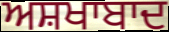
ਅਸ਼ਖਾਬਾਦ